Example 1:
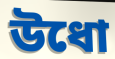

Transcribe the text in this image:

উধো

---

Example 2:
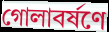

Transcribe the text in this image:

গোলাবর্ষণে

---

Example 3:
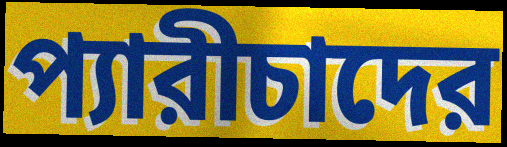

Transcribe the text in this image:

প্যারীচাদের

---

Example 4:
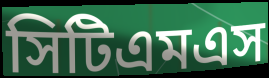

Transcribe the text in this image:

সিটিএমএস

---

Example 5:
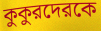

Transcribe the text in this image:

কুকুরদেরকে